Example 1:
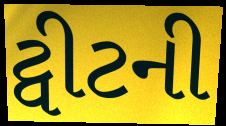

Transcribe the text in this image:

ટ્વીટની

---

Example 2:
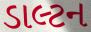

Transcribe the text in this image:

ડાલ્ટન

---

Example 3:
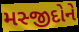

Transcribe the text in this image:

મસ્જીદોને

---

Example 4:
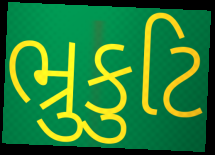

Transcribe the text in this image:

ભ્રુકુટિ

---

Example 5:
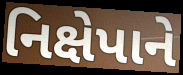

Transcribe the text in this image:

નિક્ષેપાને